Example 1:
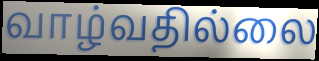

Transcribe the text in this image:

வாழ்வதில்லை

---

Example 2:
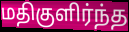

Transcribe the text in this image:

மதிகுளிர்ந்த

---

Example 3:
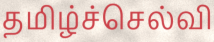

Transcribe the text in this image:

தமிழ்ச்செல்வி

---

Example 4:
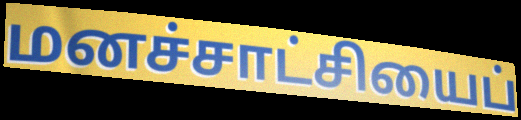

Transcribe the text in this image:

மனச்சாட்சியைப்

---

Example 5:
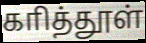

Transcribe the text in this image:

கரித்தூள்